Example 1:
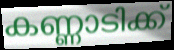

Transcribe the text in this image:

കണ്ണാടിക്ക്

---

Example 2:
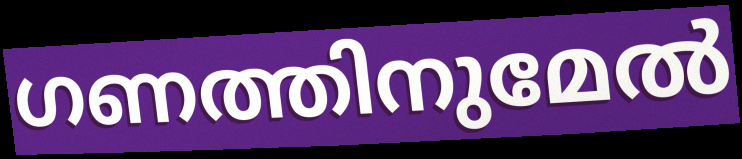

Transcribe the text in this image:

ഗണത്തിനുമേൽ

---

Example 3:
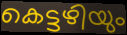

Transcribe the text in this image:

കെട്ടഴിയും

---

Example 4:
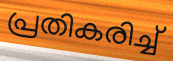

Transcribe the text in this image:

പ്രതികരിച്ച്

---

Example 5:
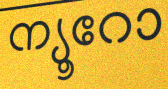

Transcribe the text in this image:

ന്യൂറോ